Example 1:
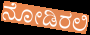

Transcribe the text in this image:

ನೋಡಿರಲಿ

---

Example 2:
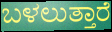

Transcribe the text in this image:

ಬಳಲುತ್ತಾರೆ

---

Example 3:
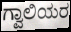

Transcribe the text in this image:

ಗ್ವಾಲಿಯರ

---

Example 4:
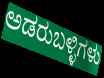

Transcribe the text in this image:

ಅಡರುಬಳ್ಳಿಗಳು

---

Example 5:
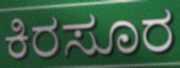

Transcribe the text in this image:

ಕಿರಸೂರ